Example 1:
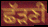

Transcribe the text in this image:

ਛੱੜਣੀ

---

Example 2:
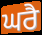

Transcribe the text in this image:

ਘਰੈ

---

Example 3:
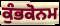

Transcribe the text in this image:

ਕੁੰਭਕੋਨਮ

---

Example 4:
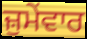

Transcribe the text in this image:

ਜ਼ੁਮੇਂਵਾਰ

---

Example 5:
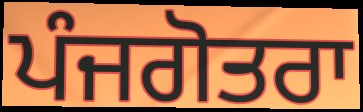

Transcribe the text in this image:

ਪੰਜਗੋਤਰਾ